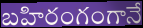
బహిరంగంగానే